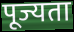
पूज्यता